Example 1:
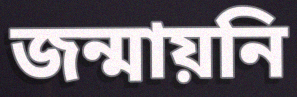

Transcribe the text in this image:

জন্মায়নি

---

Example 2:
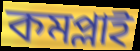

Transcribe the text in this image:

কমপ্লাই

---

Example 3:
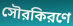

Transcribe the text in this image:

সৌরকিরণে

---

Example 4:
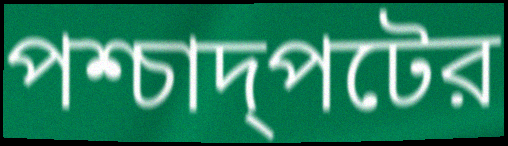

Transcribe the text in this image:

পশ্চাদ্পটের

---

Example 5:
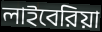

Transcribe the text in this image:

লাইবেরিয়া